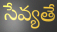
సేవ్యతే